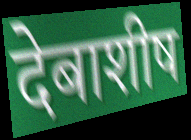
देबाशीष